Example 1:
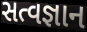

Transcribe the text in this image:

સત્વજ્ઞાન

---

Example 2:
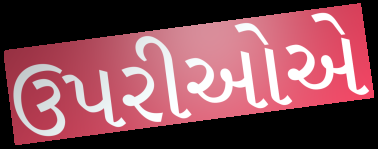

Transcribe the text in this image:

ઉપરીઓએ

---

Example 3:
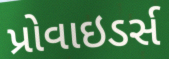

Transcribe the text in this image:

પ્રોવાઇડર્સ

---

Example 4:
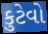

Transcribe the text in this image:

કુટેવો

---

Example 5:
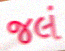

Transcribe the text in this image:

જલં